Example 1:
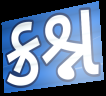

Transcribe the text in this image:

ક્રશ્ન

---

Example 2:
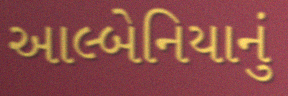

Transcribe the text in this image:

આલ્બેનિયાનું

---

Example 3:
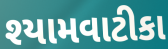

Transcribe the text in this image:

શ્યામવાટીકા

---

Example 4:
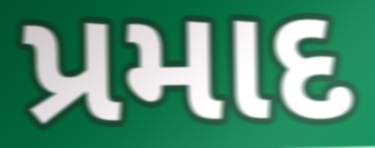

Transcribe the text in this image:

પ્રમાદ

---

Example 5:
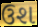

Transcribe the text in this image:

ઉશ